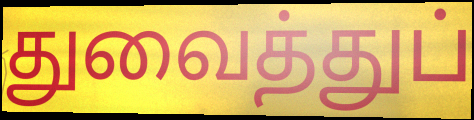
துவைத்துப்